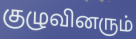
குழுவினரும்